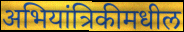
अभियांत्रिकीमधील